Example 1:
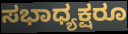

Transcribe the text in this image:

ಸಭಾಧ್ಯಕ್ಷರೂ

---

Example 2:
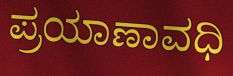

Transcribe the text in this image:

ಪ್ರಯಾಣಾವಧಿ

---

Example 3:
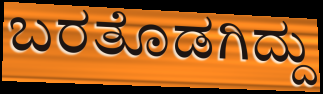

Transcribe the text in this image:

ಬರತೊಡಗಿದ್ದು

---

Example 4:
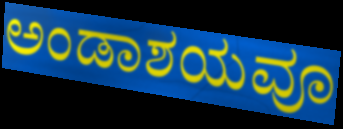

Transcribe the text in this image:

ಅಂಡಾಶಯವೂ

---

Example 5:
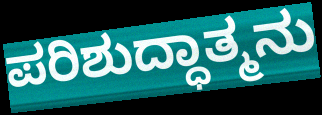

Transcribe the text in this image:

ಪರಿಶುದ್ಧಾತ್ಮನು